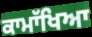
ਕਾਮਾੱਖਿਆ